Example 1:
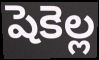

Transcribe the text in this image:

షెకెల్ల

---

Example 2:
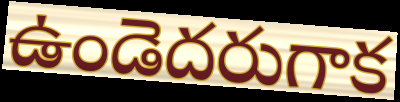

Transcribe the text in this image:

ఉండెదరుగాక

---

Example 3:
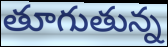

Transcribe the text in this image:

తూగుతున్న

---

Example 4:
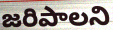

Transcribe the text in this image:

జరిపాలని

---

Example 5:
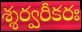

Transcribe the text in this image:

శ్శర్వరీకరః